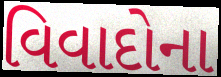
વિવાદોના